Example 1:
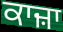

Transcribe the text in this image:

ਕਾਜ਼ਾ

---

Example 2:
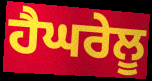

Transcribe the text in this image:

ਹੈਘਰੇਲੂ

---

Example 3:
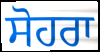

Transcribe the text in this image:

ਸੋਹਰਾ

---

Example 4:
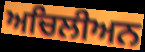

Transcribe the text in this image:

ਅਚਿਲੀਅਨ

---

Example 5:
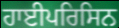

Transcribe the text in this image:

ਹਾਈਪਰਿਸਿਨ